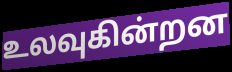
உலவுகின்றன